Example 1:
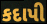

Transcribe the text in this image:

કદાપી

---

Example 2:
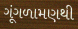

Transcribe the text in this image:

ગૂંગળામણથી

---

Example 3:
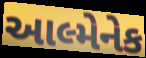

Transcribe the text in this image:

આલ્મેનેક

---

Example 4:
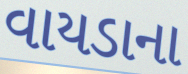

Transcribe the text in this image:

વાયડાના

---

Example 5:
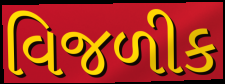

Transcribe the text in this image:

વિજળીક